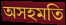
অসহমতি